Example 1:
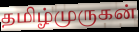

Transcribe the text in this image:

தமிழ்முருகன்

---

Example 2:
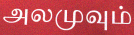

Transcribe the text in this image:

அலமுவும்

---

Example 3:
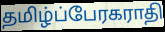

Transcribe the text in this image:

தமிழ்ப்பேரகராதி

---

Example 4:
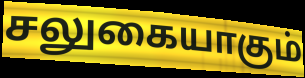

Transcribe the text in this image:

சலுகையாகும்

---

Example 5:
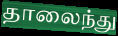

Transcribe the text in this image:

தாலைந்து